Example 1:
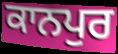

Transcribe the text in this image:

ਕਾਨਪੁਰ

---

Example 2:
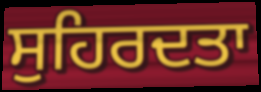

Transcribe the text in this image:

ਸੁਹਿਰਦਤਾ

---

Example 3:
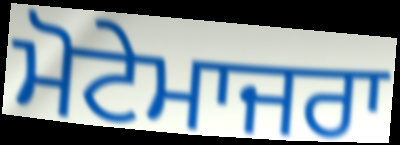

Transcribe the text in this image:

ਮੋਟੇਮਾਜਰਾ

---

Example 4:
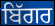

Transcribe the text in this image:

ਬਿੱਗਰ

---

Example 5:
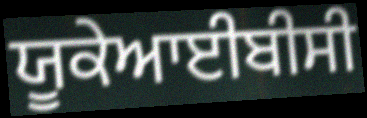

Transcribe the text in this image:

ਯੂਕੇਆਈਬੀਸੀ